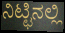
ನಿಟ್ಟಿನಲ್ಲಿ